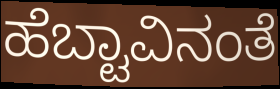
ಹೆಬ್ಟಾವಿನಂತೆ